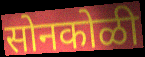
सोनकोळी